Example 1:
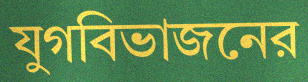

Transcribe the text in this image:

যুগবিভাজনের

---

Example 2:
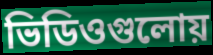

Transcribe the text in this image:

ভিডিওগুলোয়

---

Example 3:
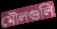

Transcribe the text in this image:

মৌলগুলি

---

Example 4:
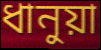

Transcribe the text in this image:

ধানুয়া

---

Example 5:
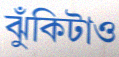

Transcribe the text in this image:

ঝুঁকিটাও